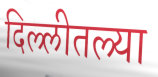
दिल्लीतल्या